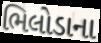
ભિલોડાના